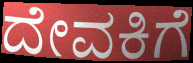
ದೇವಕಿಗೆ